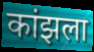
कांझला